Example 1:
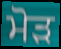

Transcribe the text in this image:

ਮੋਡ਼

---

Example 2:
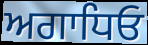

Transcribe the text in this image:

ਅਗਾਧਿਓ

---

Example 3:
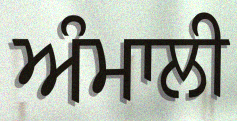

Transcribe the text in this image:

ਅੰਮਾਲੀ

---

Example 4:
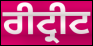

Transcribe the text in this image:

ਰੀਟ੍ਰੀਟ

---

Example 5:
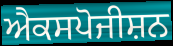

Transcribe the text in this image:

ਐਕਸਪੋਜੀਸ਼ਨ